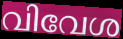
വിവേശ